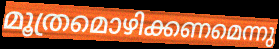
മൂത്രമൊഴിക്കണമെന്നു